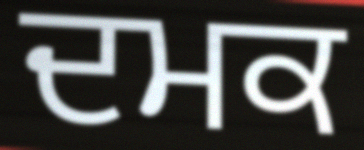
ਦਮਕ